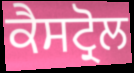
ਕੈਸਟ੍ਰੋਲ